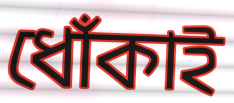
ধোঁকাই